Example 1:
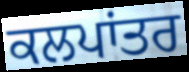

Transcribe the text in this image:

ਕਲਪਾਂਤਰ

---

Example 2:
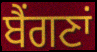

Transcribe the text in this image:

ਬੈਂਗਣਾਂ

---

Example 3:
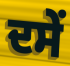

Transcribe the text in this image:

ਦਸੇਂ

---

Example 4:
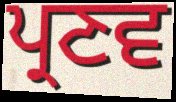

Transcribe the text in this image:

ਪ੍ਰਣਵ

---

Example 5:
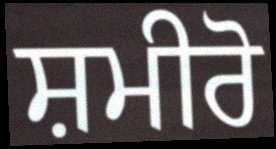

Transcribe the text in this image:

ਸ਼ਮੀਰੋ